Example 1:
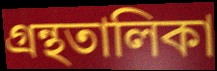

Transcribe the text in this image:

গ্ৰন্থতালিকা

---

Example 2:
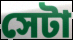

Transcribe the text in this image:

সেটা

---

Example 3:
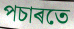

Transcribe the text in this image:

পচাৰতে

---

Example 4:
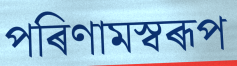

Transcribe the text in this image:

পৰিণামস্বৰূপ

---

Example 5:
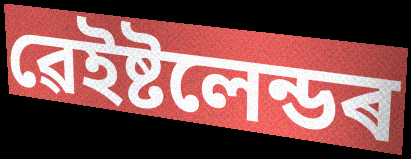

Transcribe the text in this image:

ৱেইষ্টলেন্ডৰ